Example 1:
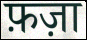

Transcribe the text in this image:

फ़ज़ा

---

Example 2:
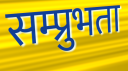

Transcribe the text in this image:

सम्प्रुभता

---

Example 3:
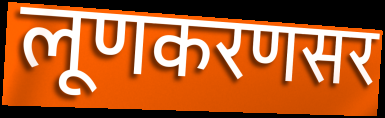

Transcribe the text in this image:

लूणकरणसर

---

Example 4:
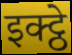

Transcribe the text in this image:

इक्ट्ठे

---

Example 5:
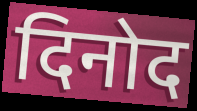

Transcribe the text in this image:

दिनोद